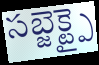
సబ్జెక్ట్పై